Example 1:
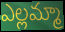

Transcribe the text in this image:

ఎల్లమ్మా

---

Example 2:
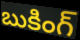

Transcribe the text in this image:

బుకింగ్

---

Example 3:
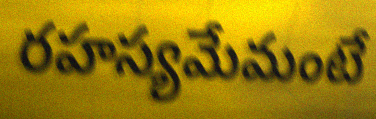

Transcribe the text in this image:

రహస్యమేమంటే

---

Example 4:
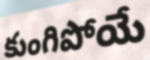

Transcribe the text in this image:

కుంగిపోయే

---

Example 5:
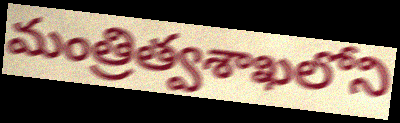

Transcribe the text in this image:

మంత్రిత్వశాఖలోని